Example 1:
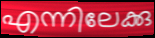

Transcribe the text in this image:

എന്നിലേക്കു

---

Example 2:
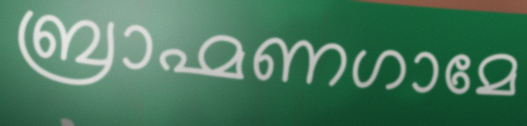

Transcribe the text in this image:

ബ്രാഹ്മണഗാമേ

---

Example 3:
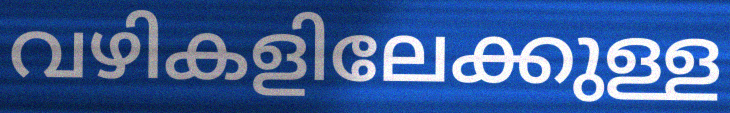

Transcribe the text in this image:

വഴികളിലേക്കുള്ള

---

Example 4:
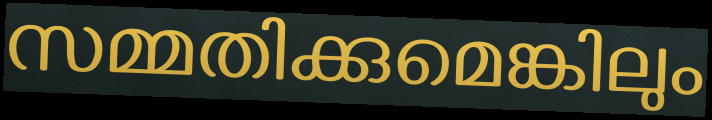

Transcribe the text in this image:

സമ്മതിക്കുമെങ്കിലും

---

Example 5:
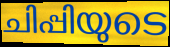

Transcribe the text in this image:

ചിപ്പിയുടെ